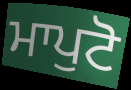
ਮਾਪੁਟੋ